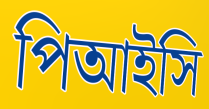
পিআইসি